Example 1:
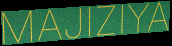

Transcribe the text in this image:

MAJIZIYA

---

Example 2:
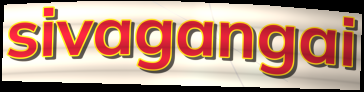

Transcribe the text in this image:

sivagangai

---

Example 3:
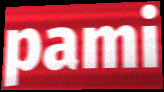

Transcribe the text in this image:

pami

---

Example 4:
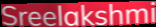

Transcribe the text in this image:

Sreelakshmi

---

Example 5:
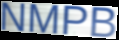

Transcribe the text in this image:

NMPB